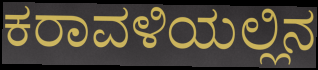
ಕರಾವಳಿಯಲ್ಲಿನ